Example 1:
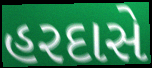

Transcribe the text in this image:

હરદાસે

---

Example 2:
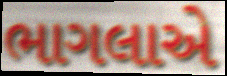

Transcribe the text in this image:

ભાગલાએ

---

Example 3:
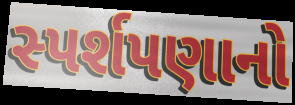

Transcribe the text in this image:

સ્પર્શપણાનો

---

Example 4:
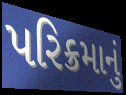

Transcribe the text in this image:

પરિક્રમાનું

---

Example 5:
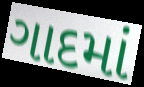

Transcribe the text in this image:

ગાદમાં